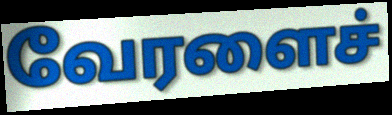
வேரளைச்